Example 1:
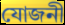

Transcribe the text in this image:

যোজনী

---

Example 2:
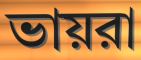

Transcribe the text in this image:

ভায়রা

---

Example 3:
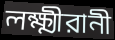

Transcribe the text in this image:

লক্ষ্মীরানী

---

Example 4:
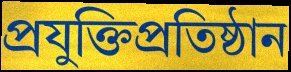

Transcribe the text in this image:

প্রযুক্তিপ্রতিষ্ঠান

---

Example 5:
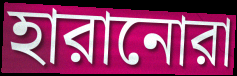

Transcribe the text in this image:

হারানোরা